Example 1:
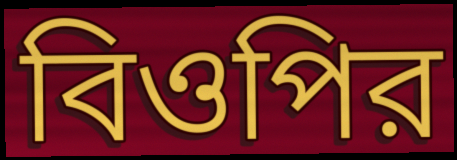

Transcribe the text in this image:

বিওপির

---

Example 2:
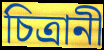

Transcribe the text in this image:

চিত্রানী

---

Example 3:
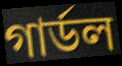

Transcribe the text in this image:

গার্ডল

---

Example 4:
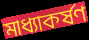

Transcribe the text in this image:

মাধ্যাকর্ষণ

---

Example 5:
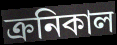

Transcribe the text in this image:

ক্রনিকাল